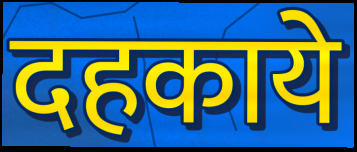
दहकाये